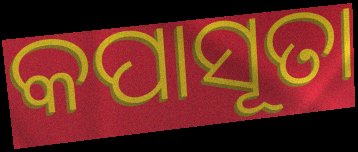
କପାସୂତା